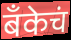
बॅंकेचं